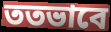
ততভাবে